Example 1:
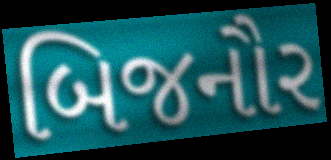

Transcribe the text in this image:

બિજનૌર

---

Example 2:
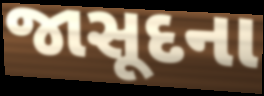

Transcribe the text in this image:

જાસૂદના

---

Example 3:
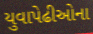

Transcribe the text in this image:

યુવાપેઢીઓના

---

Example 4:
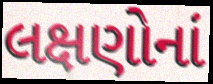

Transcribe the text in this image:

લક્ષણોનાં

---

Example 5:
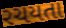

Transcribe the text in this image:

રચયતા